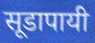
सूडापायी